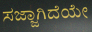
ಸಜ್ಜಾಗಿದೆಯೇ